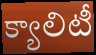
క్యాలిటీ